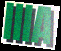
IIIA